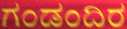
ಗಂಡಂದಿರ